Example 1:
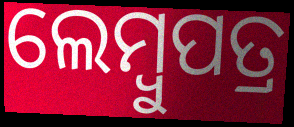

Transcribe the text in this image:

ଲେମ୍ବୁପତ୍ର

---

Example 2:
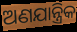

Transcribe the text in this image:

ଅଣଯାନ୍ତ୍ରିକ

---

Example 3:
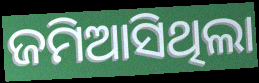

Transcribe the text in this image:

ଜମିଆସିଥିଲା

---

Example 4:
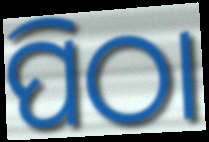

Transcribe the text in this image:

ପିଠା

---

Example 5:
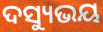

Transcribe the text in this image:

ଦସ୍ୟୁଭୟ